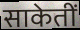
साकेतीं